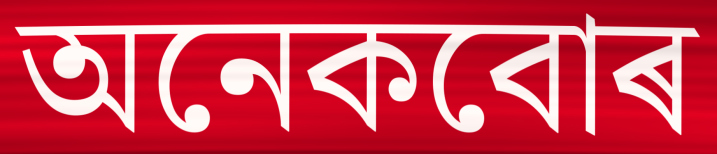
অনেকবোৰ